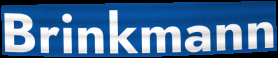
Brinkmann